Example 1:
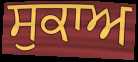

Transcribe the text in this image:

ਸੁਕਾਅ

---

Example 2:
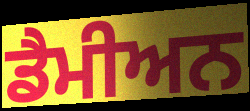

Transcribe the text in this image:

ਡੈਮੀਅਨ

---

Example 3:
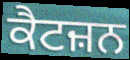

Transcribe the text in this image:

ਕੈਟਜ਼ਨ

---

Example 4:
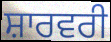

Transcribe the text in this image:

ਸ਼ਾਰਵਰੀ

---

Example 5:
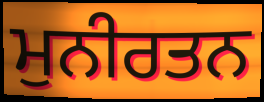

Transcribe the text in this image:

ਮੁਨੀਰਤਨ